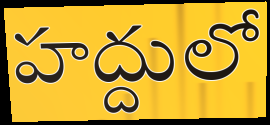
హద్దులో